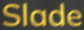
Slade